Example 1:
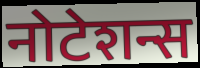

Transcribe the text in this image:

नोटेशन्स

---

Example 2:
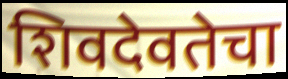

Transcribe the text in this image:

शिवदेवतेचा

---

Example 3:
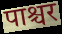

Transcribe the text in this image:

पाश्चर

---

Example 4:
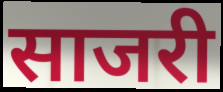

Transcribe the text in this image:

साजरी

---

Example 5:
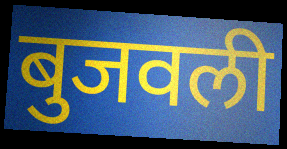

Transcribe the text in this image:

बुजवली